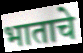
भाताचे